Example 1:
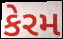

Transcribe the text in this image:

કેરમ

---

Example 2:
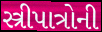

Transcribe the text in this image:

સ્ત્રીપાત્રોની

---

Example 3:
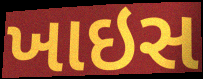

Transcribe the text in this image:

ખાઇસ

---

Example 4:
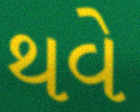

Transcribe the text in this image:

થવે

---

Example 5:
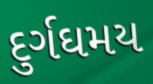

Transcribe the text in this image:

દુર્ગઘમય